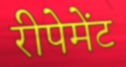
रीपेमेंट